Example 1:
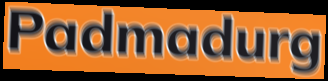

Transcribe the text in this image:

Padmadurg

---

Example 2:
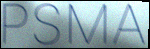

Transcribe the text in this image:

PSMA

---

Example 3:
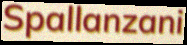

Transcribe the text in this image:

Spallanzani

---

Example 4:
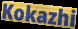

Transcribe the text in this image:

Kokazhi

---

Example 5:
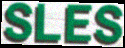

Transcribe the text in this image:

SLES